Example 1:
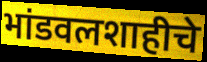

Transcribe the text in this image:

भांडवलशाहीचे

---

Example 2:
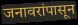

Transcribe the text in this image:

जनावरांपासून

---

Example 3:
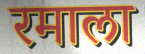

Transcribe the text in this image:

रमाला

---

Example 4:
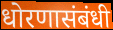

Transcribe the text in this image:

धोरणासंबंधी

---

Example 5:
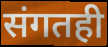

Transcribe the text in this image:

संगतही